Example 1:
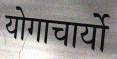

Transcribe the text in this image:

योगाचार्यो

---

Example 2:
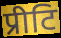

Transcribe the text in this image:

प्रीटि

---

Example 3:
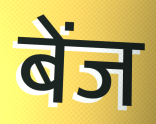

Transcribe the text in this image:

बेंज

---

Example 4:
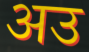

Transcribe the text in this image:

अउ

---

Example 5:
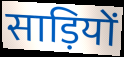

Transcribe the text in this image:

साड़ियों